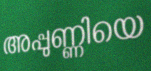
അപ്പുണ്ണിയെ